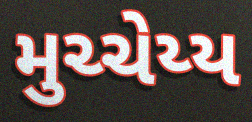
મુચ્ચેય્ય